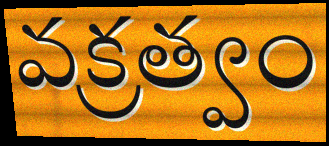
వక్రత్వం